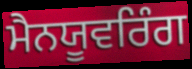
ਮੈਨਯੂਵਰਿੰਗ